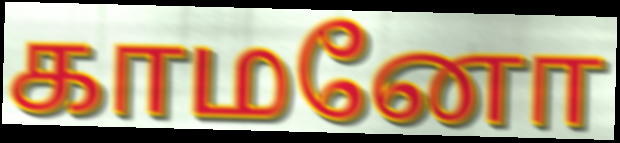
காமனோ